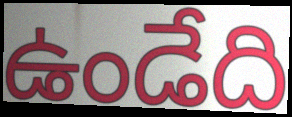
ఉండేది